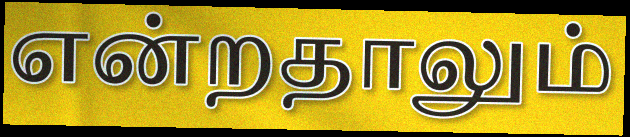
என்றதாலும்